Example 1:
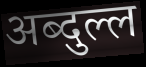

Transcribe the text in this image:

अब्दुल्ल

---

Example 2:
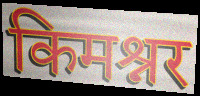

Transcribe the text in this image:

किमश्नर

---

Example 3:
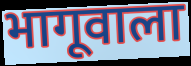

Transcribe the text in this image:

भागूवाला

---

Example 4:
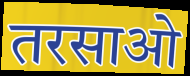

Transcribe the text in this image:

तरसाओ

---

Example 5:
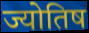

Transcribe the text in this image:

ज्योतिष